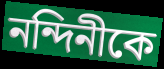
নন্দিনীকে